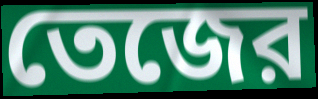
তেজের